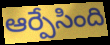
ఆర్పేసింది